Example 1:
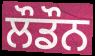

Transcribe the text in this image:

ਲੌਡੌਨ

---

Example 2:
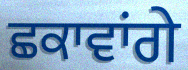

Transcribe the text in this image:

ਛਕਾਵਾਂਗੇ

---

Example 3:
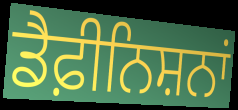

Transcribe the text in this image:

ਡੈਫ਼ੀਨਿਸ਼ਨਾਂ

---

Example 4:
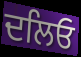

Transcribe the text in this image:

ਦਲਿਓ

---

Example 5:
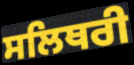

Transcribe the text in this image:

ਸਲਿਥਰੀ